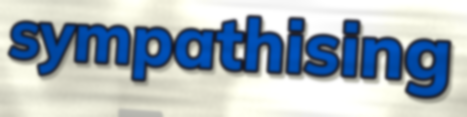
sympathising